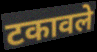
टकावले